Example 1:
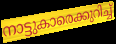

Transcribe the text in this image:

നാട്ടുകാരെക്കുറിച്ച്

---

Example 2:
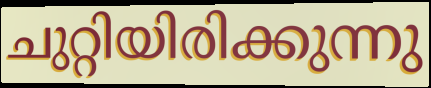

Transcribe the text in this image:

ചുറ്റിയിരിക്കുന്നു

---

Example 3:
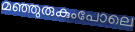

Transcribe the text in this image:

മഞ്ഞുരുകുംപോലെ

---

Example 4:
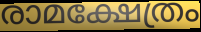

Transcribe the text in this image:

രാമക്ഷേത്രം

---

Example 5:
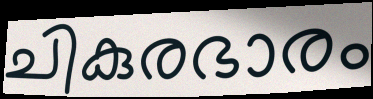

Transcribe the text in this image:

ചികുരഭാരം